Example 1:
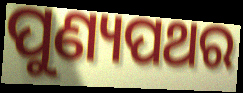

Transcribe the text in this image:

ପୁଣ୍ୟପଥର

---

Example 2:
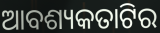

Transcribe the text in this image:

ଆବଶ୍ୟକତାଟିର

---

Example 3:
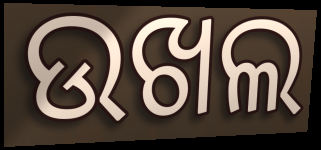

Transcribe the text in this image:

ଉଖଲ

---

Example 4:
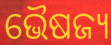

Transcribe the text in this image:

ଭୈଷଜ୍ୟ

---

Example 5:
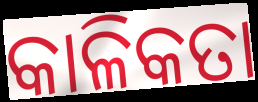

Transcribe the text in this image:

କାଳିକତା